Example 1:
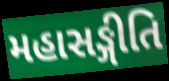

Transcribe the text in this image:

મહાસઙ્ગીતિ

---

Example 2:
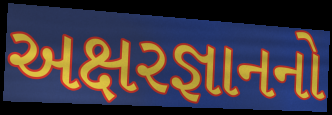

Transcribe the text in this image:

અક્ષરજ્ઞાનનો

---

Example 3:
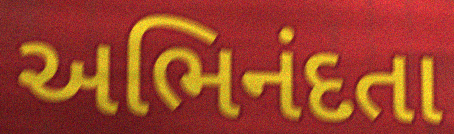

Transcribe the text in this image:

અભિનંદતા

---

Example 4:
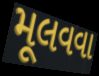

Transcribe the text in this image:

મૂલવવા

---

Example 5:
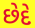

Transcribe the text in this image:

છેદે